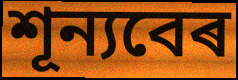
শূন্যবেৰ